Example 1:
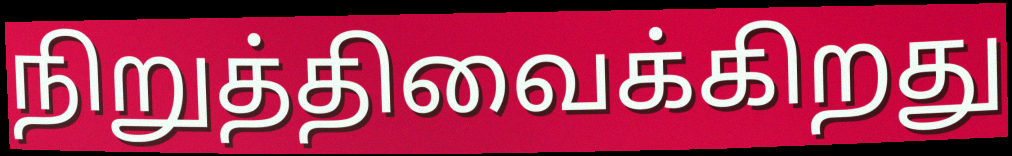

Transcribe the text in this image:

நிறுத்திவைக்கிறது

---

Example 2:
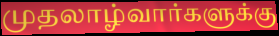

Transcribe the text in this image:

முதலாழ்வார்களுக்கு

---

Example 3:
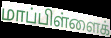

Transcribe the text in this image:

மாப்பிள்ளைக்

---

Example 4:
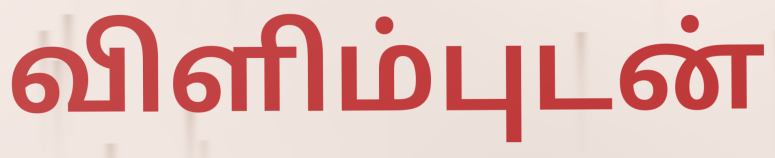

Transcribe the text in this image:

விளிம்புடன்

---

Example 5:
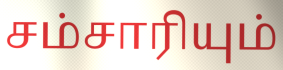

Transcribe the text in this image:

சம்சாரியும்